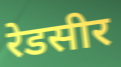
रेडसीर